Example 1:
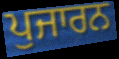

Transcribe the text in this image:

ਪੁਜਾਰਨ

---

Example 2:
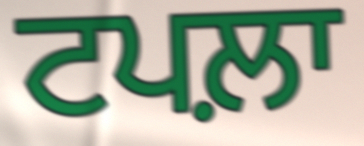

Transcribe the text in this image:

ਟਪਲ਼ਾ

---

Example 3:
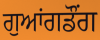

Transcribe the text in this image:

ਗੁਆਂਗਡੌਂਗ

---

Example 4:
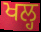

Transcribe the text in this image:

ਖਲ੍ਹ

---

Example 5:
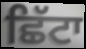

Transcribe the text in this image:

ਛਿੱਟਾ